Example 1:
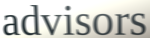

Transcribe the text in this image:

advisors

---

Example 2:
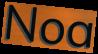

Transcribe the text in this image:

Noa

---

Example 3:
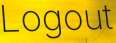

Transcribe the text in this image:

Logout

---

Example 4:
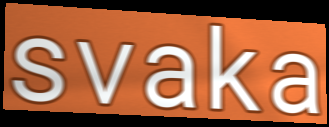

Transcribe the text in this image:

svaka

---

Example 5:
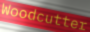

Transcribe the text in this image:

Woodcutter